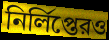
নির্লিপ্তেরও